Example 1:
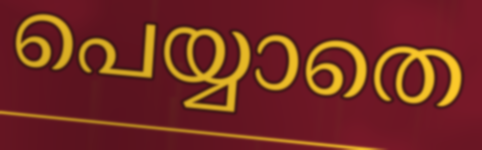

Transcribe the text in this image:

പെയ്യാതെ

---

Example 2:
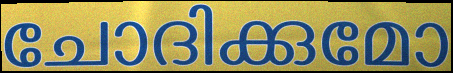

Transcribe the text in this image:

ചോദിക്കുമോ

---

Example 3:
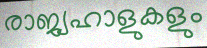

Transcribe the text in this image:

രാജ്യഹാളുകളും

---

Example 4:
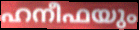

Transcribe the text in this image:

ഹനീഫയും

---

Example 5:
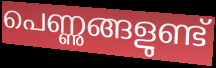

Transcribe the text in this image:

പെണ്ണുങ്ങളുണ്ട്